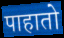
पाहातो